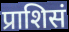
प्राशिसं